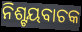
ନିଶ୍ଟୟବାଚକ